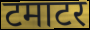
टमाटर